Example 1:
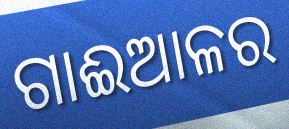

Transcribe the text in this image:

ଗାଈଆଳର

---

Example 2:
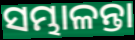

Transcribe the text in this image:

ସମ୍ଭାଳନ୍ତା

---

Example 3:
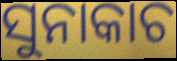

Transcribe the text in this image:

ସୁନାକାଚ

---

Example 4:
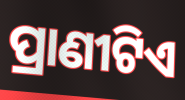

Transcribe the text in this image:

ପ୍ରାଣୀଟିଏ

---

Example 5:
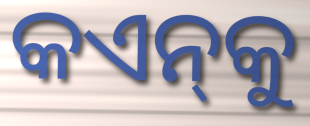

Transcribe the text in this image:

କଏନ୍‌କୁ